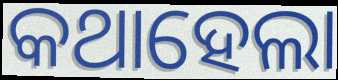
କଥାହେଲା